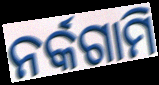
ନର୍କଗାମି